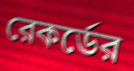
রেকর্ডের